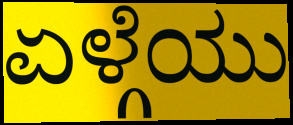
ಏಳ್ಗೆಯು